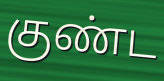
குண்ட